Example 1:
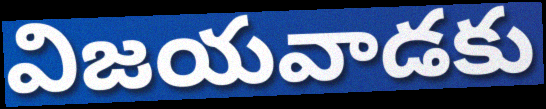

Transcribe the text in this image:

విజయవాడకు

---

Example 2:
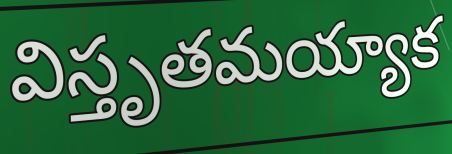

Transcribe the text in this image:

విస్తృతమయ్యాక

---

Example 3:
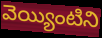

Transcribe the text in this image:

వెయ్యింటిని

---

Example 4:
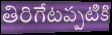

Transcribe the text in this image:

తిరిగేటప్పటికి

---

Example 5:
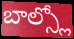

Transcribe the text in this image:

బాల్స్లో